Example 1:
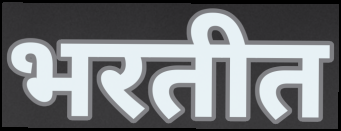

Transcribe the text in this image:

भरतीत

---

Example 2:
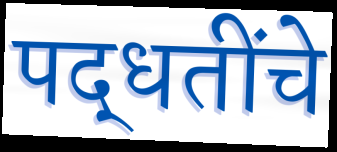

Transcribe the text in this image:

पद्धतींचे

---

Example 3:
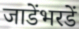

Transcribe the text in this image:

जाडेंभरडें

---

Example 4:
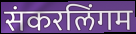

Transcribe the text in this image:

संकरलिंगम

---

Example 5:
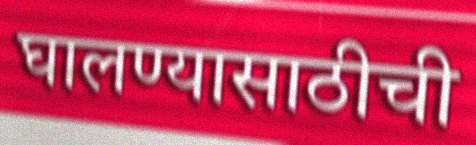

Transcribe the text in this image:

घालण्यासाठीची